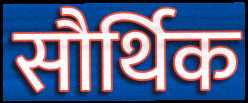
सौर्थिक